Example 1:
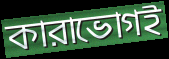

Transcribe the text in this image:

কারাভোগই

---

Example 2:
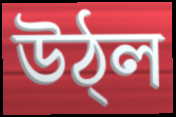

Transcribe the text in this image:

উঠ্ল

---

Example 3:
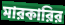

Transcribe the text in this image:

মারকারির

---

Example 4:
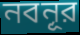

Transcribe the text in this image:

নবনূর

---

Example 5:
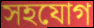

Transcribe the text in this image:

সহযোগ